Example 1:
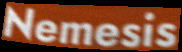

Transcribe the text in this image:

Nemesis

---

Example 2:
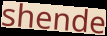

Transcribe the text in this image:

shende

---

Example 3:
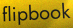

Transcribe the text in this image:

flipbook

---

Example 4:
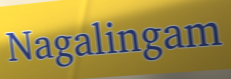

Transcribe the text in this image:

Nagalingam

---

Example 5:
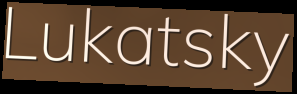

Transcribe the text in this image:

Lukatsky